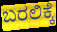
ಬರಲಿಕ್ಕೆ